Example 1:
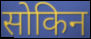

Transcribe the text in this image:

सोकिन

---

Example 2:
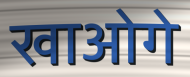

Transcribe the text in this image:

खाओगे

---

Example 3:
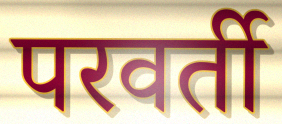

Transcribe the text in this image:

परवर्ती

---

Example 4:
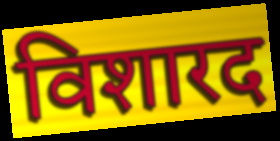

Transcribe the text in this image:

विशारद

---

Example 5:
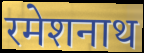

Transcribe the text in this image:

रमेशनाथ